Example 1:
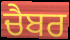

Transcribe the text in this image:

ਚੈਬਰ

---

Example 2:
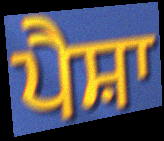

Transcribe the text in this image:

ਪੈਸ਼ਾ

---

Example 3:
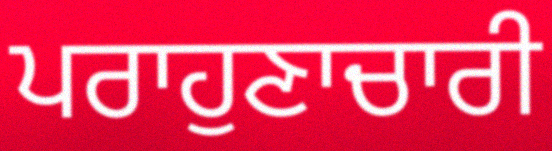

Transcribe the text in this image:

ਪਰਾਹੁਣਾਚਾਰੀ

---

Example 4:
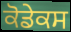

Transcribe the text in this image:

ਕੋਡੇਕਸ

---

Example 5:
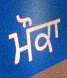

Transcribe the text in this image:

ਮੌਕਾ